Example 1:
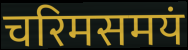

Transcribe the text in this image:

चरिमसमयं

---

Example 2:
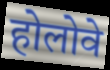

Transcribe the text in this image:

होलोवे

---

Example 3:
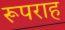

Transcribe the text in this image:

रूपराह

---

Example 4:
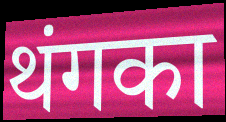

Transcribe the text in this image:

थंगका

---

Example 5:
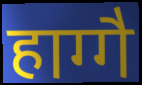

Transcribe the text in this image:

हाग्गै